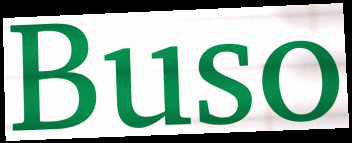
Buso